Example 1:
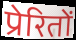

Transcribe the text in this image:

प्रेरितों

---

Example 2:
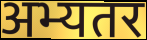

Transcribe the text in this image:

अभ्यतर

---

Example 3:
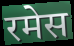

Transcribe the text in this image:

रमेस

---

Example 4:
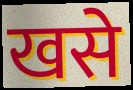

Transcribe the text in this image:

खसे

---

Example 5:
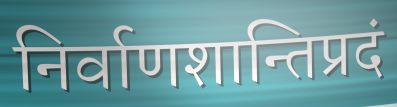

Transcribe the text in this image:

निर्वाणशान्तिप्रदं